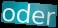
oder